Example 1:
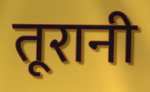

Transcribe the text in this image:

तूरानी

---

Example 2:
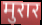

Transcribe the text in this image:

मुरार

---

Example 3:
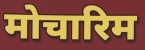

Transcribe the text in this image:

मोचारिम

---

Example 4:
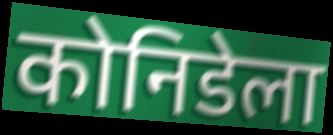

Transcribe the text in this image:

कोनिडेला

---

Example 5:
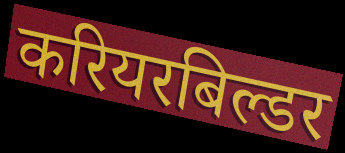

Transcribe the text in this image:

करियरबिल्डर